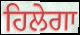
ਹਿਲੇਗਾ